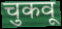
चुकवू